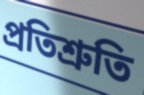
প্রতিশ্রুতি